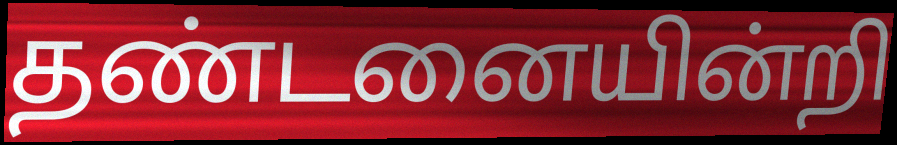
தண்டனையின்றி